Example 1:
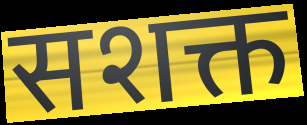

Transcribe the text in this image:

सशक्त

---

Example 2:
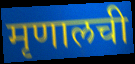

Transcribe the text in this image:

मृणालची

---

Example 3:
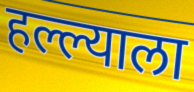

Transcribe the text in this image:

हल्ल्याला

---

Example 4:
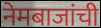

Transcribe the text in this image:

नेमबाजांची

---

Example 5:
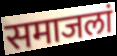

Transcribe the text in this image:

समाजलां